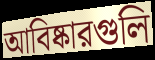
আবিষ্কারগুলি